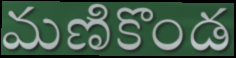
మణికొండ